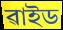
ৱাইড